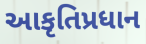
આકૃતિપ્રધાન